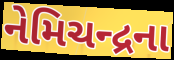
નેમિચન્દ્રના